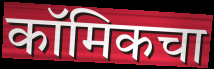
कॉमिकचा